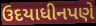
ઉદયાધીનપણે